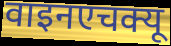
वाइनएचक्यू